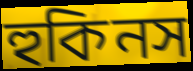
হুকিনস